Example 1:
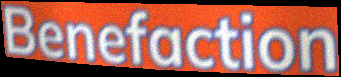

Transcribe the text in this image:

Benefaction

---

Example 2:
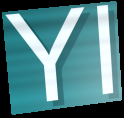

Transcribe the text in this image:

Yl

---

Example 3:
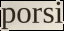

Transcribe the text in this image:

porsi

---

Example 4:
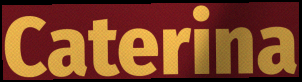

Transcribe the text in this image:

Caterina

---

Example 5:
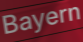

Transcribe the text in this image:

Bayern